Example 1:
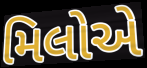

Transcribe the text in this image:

મિલોએ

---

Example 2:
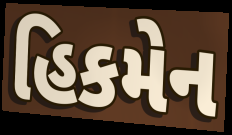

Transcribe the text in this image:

હિકમેન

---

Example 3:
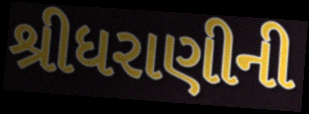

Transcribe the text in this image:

શ્રીધરાણીની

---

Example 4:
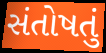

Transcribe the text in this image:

સંતોષતું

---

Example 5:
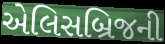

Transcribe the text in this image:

એલિસબ્રિજની